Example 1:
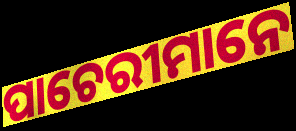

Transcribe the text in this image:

ପାଚେରୀମାନେ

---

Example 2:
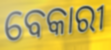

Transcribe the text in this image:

ବେକାରୀ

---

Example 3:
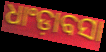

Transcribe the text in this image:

ଧାଂଡ଼ାବସା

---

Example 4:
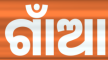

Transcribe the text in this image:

ଗାଁଆ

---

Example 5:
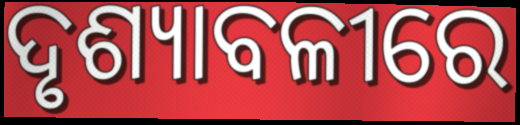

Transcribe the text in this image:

ଦୃଶ୍ୟାବଳୀରେ